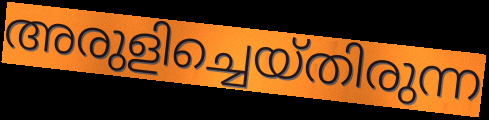
അരുളിച്ചെയ്തിരുന്ന